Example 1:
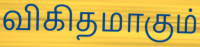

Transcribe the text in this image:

விகிதமாகும்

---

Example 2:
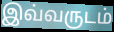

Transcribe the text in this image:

இவ்வருடம்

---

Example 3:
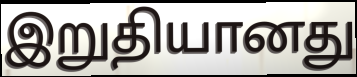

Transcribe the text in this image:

இறுதியானது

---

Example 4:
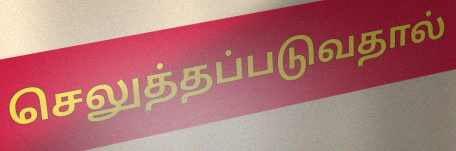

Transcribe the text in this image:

செலுத்தப்படுவதால்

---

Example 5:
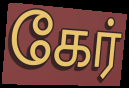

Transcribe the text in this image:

கேர்